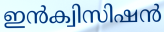
ഇൻക്വിസിഷൻ